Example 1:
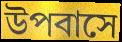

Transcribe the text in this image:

উপবাসে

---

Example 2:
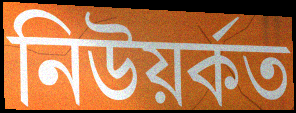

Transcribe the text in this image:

নিউয়ৰ্কত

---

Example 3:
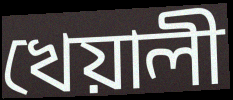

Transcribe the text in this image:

খেয়ালী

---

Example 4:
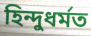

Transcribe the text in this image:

হিন্দুধৰ্মত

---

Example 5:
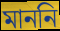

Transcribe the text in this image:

মাননি